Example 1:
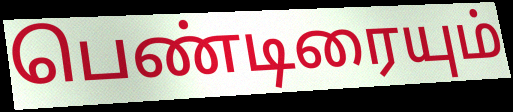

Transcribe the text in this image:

பெண்டிரையும்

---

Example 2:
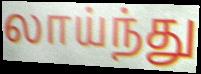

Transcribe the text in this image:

லாய்ந்து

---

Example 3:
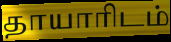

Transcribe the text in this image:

தாயாரிடம்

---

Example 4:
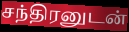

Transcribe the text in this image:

சந்திரனுடன்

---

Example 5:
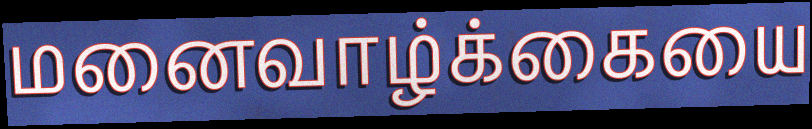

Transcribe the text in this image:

மனைவாழ்க்கையை